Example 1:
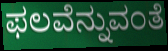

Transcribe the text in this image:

ಫಲವೆನ್ನುವಂತೆ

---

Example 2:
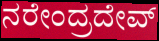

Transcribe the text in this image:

ನರೇಂದ್ರದೇವ್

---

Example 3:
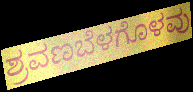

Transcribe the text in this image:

ಶ್ರವಣಬೆಳಗೊಳವು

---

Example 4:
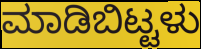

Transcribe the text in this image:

ಮಾಡಿಬಿಟ್ಟಳು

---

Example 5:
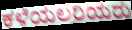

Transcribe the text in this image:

ಕಳೆಯಲರಿಯರು